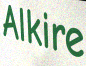
Alkire